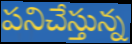
పనిచేస్తున్న